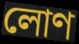
লোণ